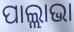
ପାଲ୍ଲାଭା